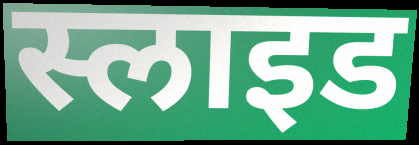
स्लाइड